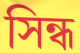
সিন্ধ